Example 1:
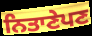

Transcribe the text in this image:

ਨਿਤਾਣੇਪਣ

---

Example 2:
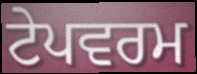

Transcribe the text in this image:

ਟੇਪਵਰਮ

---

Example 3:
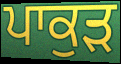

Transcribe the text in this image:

ਪਾਕੁੜ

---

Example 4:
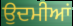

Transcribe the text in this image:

ਉਦਮੀਆਂ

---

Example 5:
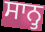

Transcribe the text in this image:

ਸਾਨ੍ਤ